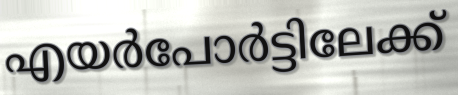
എയർപോർട്ടിലേക്ക്